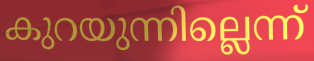
കുറയുന്നില്ലെന്ന്